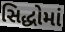
સિદ્ધોમાં